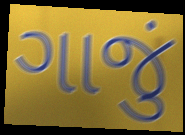
ગાજું